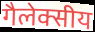
गैलेक्सीय